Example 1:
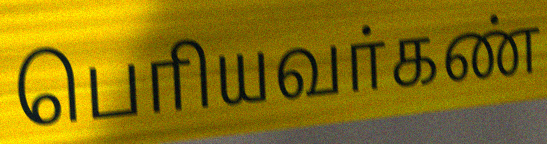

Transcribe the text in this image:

பெரியவர்கண்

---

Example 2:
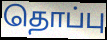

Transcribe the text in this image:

தொப்பு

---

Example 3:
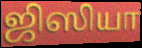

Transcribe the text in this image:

ஜிஸியா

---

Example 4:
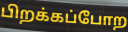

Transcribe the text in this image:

பிறக்கப்போற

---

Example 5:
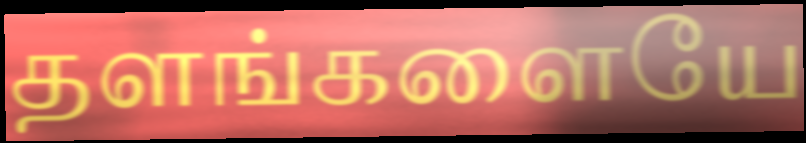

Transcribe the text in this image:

தளங்களையே